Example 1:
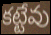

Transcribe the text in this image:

కట్టేవు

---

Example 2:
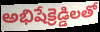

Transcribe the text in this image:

అభిషేక్రెడ్డిలతో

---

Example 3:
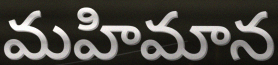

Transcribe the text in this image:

మహిమాన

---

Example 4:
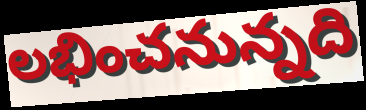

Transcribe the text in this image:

లభించనున్నది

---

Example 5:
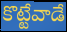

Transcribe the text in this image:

కొట్టేవాడే